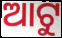
ଆଟୁ